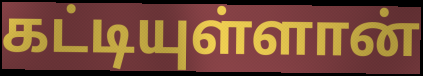
கட்டியுள்ளான்